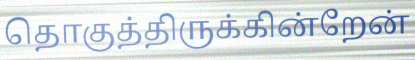
தொகுத்திருக்கின்றேன்